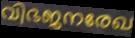
വിഭജനരേഖ